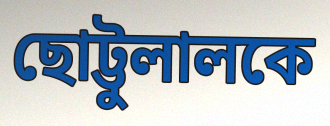
ছোট্টুলালকে